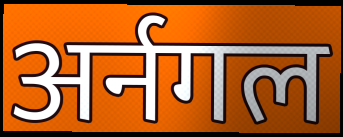
अर्नगल